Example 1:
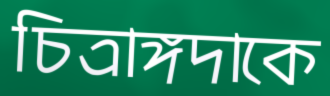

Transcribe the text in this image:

চিত্রাঙ্গদাকে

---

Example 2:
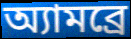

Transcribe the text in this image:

অ্যামব্রে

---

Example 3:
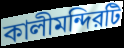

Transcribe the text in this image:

কালীমন্দিরটি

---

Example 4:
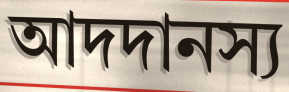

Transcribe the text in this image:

আদদানস্য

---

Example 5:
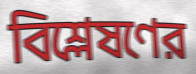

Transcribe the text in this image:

বিশ্লেষণের